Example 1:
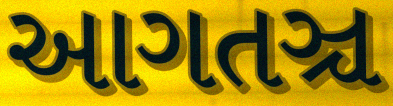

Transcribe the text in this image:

આગતઞ્ચ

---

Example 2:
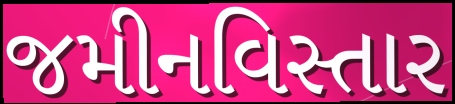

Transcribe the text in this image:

જમીનવિસ્તાર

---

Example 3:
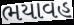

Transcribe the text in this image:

ભયાવહ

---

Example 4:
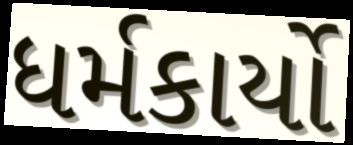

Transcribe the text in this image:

ધર્મકાર્યો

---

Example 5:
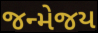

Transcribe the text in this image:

જન્મેજય